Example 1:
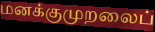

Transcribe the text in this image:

மனக்குமுறலைப்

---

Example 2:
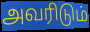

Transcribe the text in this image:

அவரிடும்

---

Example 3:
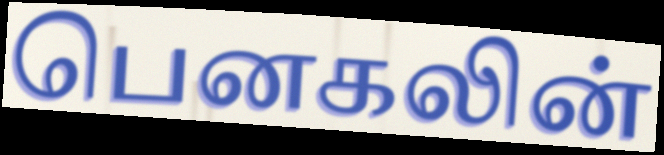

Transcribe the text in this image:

பெனகலின்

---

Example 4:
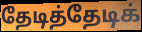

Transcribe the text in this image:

தேடித்தேடிக்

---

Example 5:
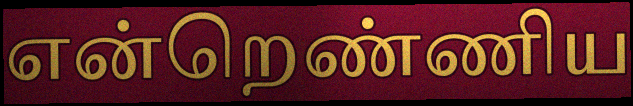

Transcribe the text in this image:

என்றெண்ணிய